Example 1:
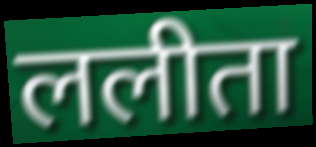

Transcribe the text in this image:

ललीता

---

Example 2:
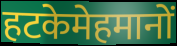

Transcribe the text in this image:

हटकेमेहमानों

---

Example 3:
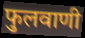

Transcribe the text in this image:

फुलवाणी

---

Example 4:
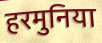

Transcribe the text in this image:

हरमुनिया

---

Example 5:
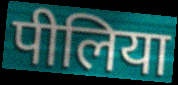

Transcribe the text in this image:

पीलिया